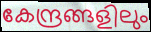
കേന്ദ്രങ്ങളിലും